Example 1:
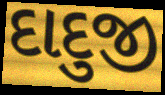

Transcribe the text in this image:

દાદુજી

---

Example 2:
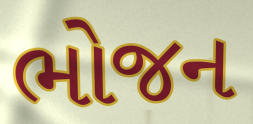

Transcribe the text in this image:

ભોજન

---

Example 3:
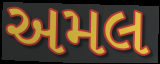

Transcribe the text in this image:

અમલ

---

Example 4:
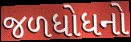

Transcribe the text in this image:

જળધોધનો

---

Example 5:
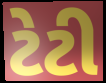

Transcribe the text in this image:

ટેટી